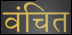
वंचित